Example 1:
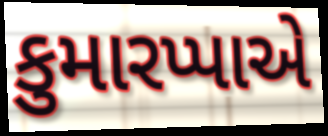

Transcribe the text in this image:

કુમારપ્પાએ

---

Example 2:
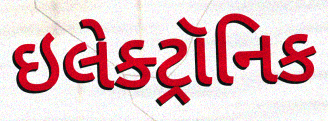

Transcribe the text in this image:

ઇલેક્ટ્રૉનિક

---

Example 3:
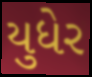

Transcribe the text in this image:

યુધેર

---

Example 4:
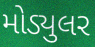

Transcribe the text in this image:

મોડ્યુલર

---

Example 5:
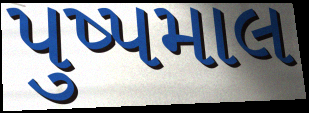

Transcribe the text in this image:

પુષ્પમાલ